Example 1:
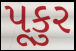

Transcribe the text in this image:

પૂકુર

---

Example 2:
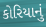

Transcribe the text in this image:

કોરિયાનું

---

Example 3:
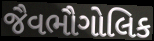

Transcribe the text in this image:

જૈવભૌગોલિક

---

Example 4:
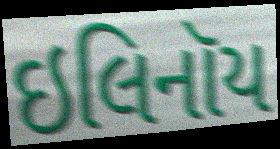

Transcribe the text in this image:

ઇલિનૉય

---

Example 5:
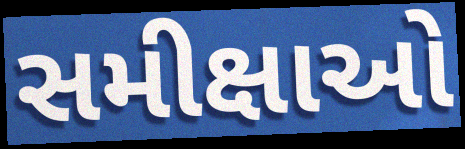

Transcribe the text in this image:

સમીક્ષાઓ